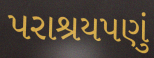
પરાશ્રયપણું